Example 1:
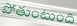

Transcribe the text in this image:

పోతుంటుంది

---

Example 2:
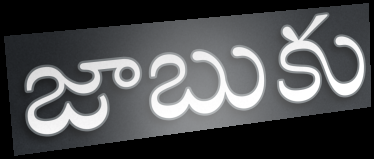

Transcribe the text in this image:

జాబుకు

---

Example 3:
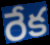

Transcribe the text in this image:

రేక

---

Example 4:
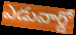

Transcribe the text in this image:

ఎడువార్డో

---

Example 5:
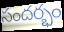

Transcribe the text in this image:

సందర్భం